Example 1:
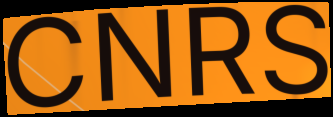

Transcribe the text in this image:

CNRS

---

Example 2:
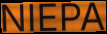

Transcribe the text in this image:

NIEPA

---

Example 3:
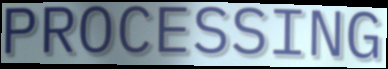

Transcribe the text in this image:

PROCESSING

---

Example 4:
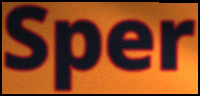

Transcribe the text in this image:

Sper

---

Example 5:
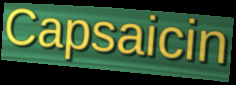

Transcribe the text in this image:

Capsaicin